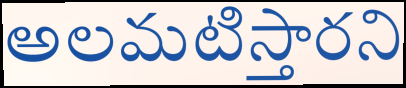
అలమటిస్తారని